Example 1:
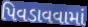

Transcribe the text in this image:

પિવડાવવામાં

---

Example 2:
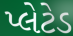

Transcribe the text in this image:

પ્લેટેડ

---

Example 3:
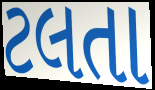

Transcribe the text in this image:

ટલતા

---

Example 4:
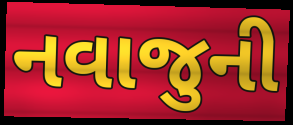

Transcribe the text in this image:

નવાજુની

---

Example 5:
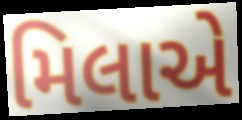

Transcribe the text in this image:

મિલાએ